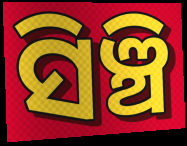
ସିଞ୍ଚି